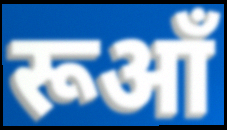
रूआँ